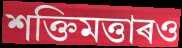
শক্তিমত্তাৰও